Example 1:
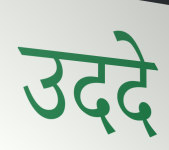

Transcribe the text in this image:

उददे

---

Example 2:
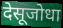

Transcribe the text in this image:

देसूजोधा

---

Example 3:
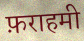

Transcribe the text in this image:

फ़राहमी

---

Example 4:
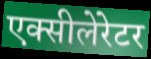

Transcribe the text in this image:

एक्सीलेरेटर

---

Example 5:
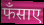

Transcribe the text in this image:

फँसाए